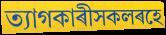
ত্যাগকাৰীসকলৰহে